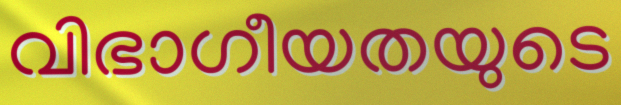
വിഭാഗീയതയുടെ